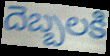
దెబ్బలకి